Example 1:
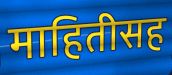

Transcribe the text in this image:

माहितीसह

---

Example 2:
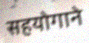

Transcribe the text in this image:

सहयोगाने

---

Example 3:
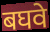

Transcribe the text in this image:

बघवे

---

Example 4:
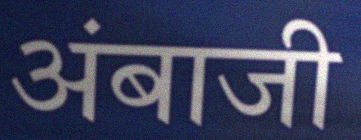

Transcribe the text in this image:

अंबाजी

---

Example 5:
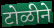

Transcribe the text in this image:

टोळीने